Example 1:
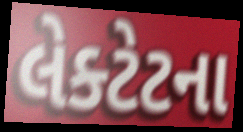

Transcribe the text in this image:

લેક્ટેટના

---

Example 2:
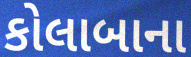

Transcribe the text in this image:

કોલાબાના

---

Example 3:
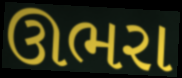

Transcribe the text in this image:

ઊભરા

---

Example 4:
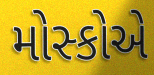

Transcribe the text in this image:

મોસ્કોએ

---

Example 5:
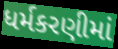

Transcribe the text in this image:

ધર્મકરણીમાં